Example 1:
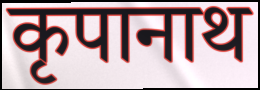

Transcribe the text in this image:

कृपानाथ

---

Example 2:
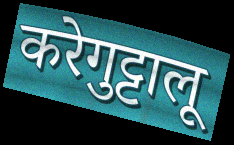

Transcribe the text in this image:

करेगुट्टालू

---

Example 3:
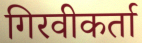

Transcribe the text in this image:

गिरवीकर्ता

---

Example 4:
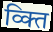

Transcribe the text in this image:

व्क्ति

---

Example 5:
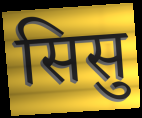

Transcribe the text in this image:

सिसु